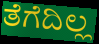
ತೆಗೆದಿಲ್ಲ